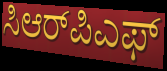
ಸಿಆರ್‌ಪಿಎಫ್